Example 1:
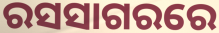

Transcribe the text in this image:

ରସସାଗରରେ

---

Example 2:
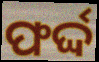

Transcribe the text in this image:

ଫର୍ଦ୍ଦ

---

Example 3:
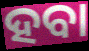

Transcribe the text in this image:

ହବା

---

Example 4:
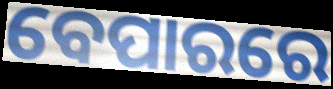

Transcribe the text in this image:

ବେପାରରେ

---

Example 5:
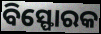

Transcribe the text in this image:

ବିସ୍ଫୋରକ